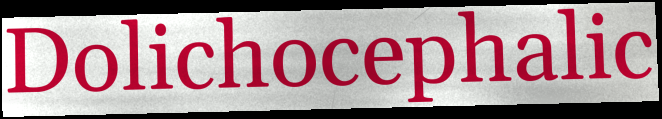
Dolichocephalic